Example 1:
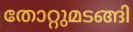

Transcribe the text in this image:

തോറ്റുമടങ്ങി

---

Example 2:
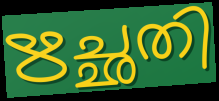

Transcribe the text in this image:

ഋച്ഛതി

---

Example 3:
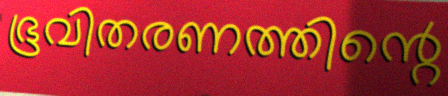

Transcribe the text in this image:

ഭൂവിതരണത്തിന്റെ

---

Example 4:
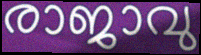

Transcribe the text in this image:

രാജാവു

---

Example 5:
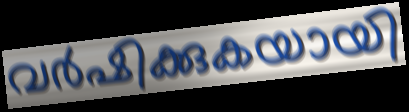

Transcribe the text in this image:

വർഷിക്കുകയായി